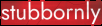
stubbornly